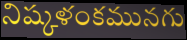
నిష్కళంకమునగు